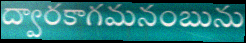
ద్వారకాగమనంబును